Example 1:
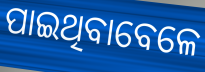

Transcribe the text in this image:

ପାଇଥିବାବେଳେ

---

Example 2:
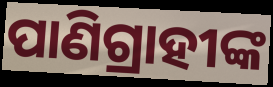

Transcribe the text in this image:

ପାଣିଗ୍ରାହୀଙ୍କ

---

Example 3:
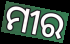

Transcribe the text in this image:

ମୀର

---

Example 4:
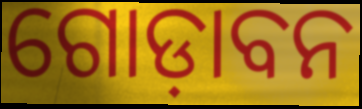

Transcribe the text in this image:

ଗୋଡ଼ାବନ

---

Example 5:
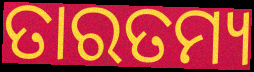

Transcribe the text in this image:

ତାରତମ୍ୟ